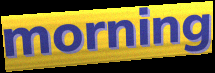
morning